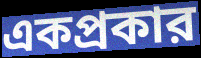
একপ্রকার